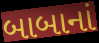
બાબાનાં